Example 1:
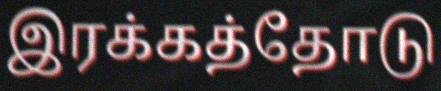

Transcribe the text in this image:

இரக்கத்தோடு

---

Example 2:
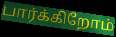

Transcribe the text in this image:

பார்க்கிறோம்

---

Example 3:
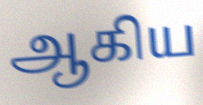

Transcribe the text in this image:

ஆகிய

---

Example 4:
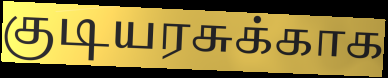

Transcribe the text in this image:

குடியரசுக்காக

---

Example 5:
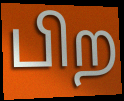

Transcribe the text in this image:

பிற